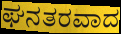
ಘನತರವಾದ